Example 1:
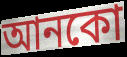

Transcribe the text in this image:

আনকো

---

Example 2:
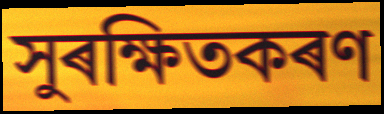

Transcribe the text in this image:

সুৰক্ষিতকৰণ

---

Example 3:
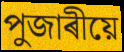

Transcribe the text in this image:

পুজাৰীয়ে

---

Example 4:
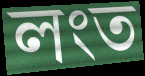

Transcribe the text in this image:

লংত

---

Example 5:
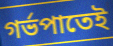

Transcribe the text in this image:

গৰ্ভপাতেই